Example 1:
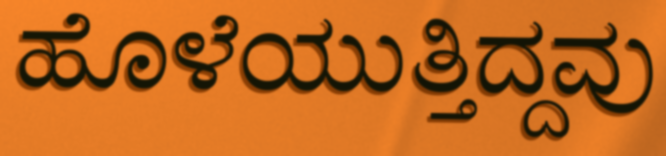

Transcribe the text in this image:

ಹೊಳೆಯುತ್ತಿದ್ದವು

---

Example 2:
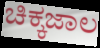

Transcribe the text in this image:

ಚಿಕ್ಕಜಾಲ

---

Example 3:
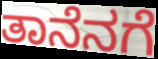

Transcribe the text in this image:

ತಾನೆನಗೆ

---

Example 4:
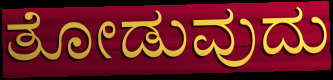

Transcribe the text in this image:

ತೋಡುವುದು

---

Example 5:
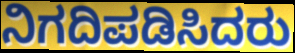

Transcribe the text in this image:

ನಿಗದಿಪಡಿಸಿದರು